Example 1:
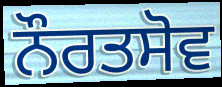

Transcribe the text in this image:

ਨੌਰਤਸੋਵ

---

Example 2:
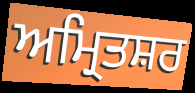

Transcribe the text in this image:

ਅਮ੍ਰਿਤਸ਼ਰ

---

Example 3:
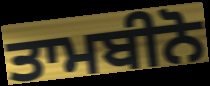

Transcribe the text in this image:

ਤਾਮਬੀਨੋ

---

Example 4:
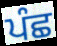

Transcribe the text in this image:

ਪੰਛ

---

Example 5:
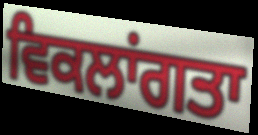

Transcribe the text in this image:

ਵਿਕਲਾਂਗਤਾ